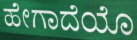
ಹೇಗಾದೆಯೊ